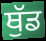
ਥੁੱਡ